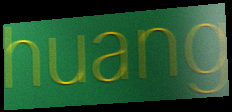
huang